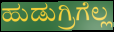
ಹುಡುಗ್ರಿಗೆಲ್ಲ